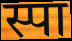
स्पा